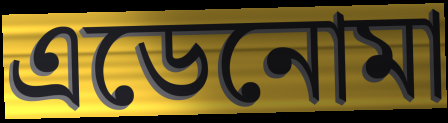
এডেনোমা